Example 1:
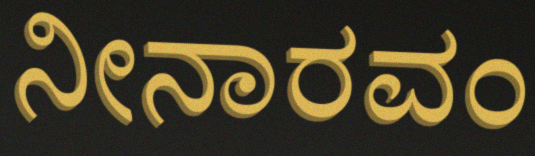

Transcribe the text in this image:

ನೀನಾರವಂ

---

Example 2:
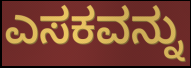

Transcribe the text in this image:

ಎಸಕವನ್ನು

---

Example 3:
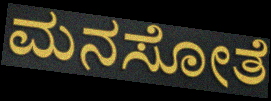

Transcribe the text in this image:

ಮನಸೋತೆ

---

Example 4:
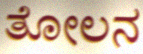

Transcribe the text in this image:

ತೋಲನ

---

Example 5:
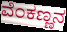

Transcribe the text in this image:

ವೆಂಕಣ್ಣನ